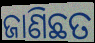
ଜାଣିଛତ